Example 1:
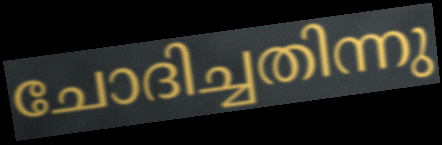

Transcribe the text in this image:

ചോദിച്ചതിന്നു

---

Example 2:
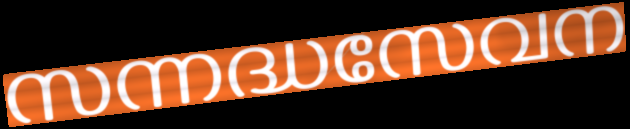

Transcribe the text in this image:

സന്നദ്ധസേവന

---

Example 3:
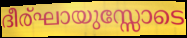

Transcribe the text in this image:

ദീര്ഘായുസ്സോടെ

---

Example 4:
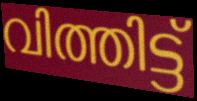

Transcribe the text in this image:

വിത്തിട്ട്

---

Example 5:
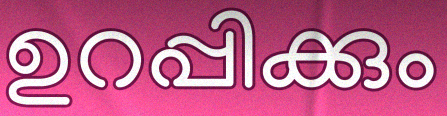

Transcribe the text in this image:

ഉറപ്പിക്കും